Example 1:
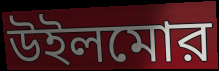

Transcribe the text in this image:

উইলমোর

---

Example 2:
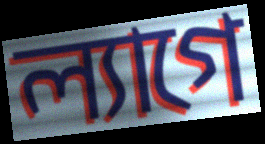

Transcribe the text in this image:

ল্যাগে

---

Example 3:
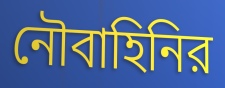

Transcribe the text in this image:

নৌবাহিনির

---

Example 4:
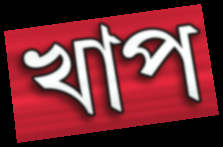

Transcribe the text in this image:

খাপ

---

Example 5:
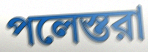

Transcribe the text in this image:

পলেস্তরা